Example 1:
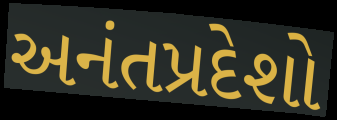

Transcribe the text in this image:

અનંતપ્રદેશો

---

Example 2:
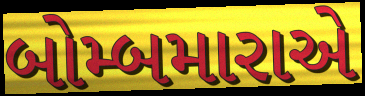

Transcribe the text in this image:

બોમ્બમારાએ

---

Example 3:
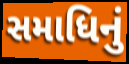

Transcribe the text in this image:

સમાધિનું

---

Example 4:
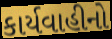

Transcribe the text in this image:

કાર્યવાહીનો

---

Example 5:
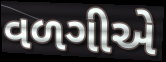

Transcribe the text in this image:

વળગીએ